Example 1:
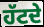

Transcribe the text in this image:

ਹੱਟਦੇ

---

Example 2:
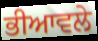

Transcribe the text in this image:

ਭੀਆਵਲੇ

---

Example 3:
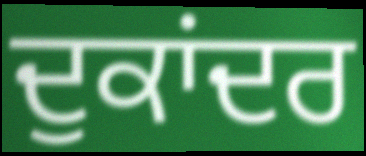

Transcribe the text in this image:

ਦੁਕਾਂਦਰ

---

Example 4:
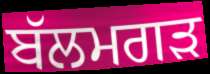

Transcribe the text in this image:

ਬੱਲਮਗੜ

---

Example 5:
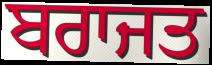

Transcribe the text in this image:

ਬਰਾਜਤ